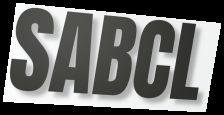
SABCL